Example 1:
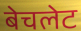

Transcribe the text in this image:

बेचलेट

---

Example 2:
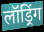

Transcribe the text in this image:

लॉड्रिंग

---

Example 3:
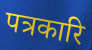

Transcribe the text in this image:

पत्रकारि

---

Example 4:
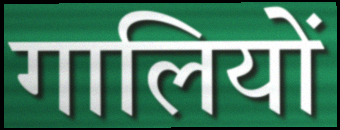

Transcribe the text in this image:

गालियों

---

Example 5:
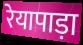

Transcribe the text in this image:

रेयापाड़ा